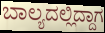
ಬಾಲ್ಯದಲ್ಲಿದ್ದಾಗ